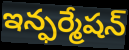
ఇన్ఫర్మేషన్